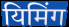
यिमिंग